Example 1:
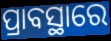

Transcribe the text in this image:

ପ୍ରାବସ୍ଥାରେ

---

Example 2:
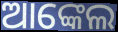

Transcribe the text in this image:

ଆଙ୍କେଲ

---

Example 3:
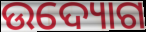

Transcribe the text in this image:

ଉଦ୍ୟୋଗ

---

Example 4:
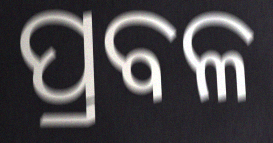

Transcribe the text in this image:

ପ୍ରବଳ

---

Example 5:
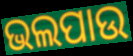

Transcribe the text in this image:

ଭଲପାଉ